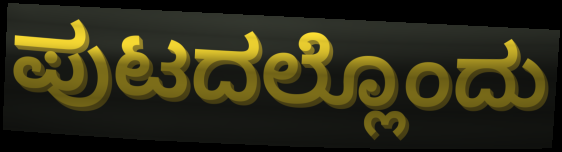
ಪುಟದಲ್ಲೊಂದು